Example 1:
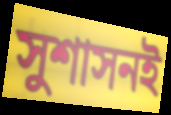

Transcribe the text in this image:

সুশাসনই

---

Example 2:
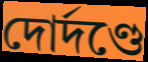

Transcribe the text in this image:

দোর্দণ্ডে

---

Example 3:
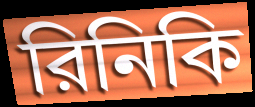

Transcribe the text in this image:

রিনিকি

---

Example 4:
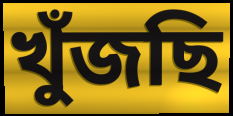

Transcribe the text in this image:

খুঁজছি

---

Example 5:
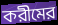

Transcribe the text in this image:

করীমের